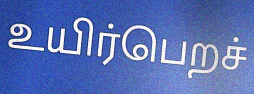
உயிர்பெறச்